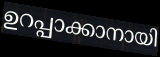
ഉറപ്പാക്കാനായി